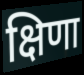
क्षिणा